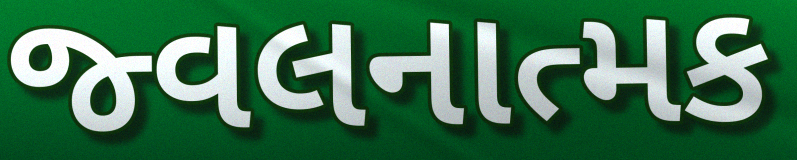
જ્વલનાત્મક